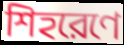
শিহরেণে